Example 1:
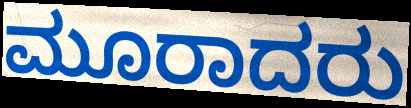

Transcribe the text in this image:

ಮೂರಾದರು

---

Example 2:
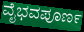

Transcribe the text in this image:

ವೈಭವಪೂರ್ಣ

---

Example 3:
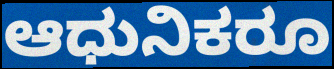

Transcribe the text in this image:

ಆಧುನಿಕರೂ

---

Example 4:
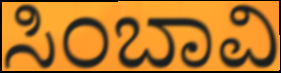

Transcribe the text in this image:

ಸಿಂಬಾವಿ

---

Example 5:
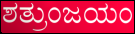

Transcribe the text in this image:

ಶತ್ರುಂಜಯಂ